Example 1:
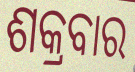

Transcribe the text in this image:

ଶକ୍ରବାର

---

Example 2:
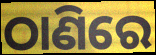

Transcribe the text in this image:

ଠାଣିରେ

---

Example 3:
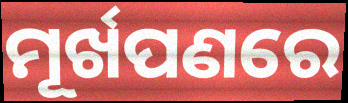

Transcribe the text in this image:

ମୂର୍ଖପଣରେ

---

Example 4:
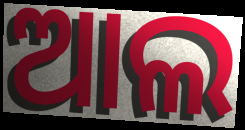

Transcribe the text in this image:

ଆଲ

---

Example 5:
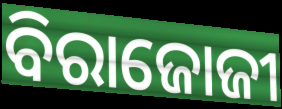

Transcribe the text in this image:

ବିରାଜୋଜୀ